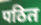
पठित